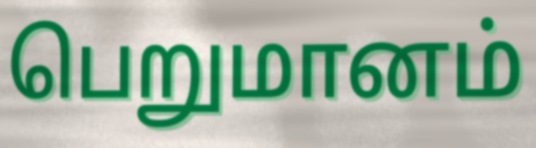
பெறுமானம்